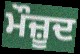
ਮੌਜ਼ੂਦ